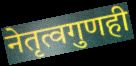
नेतृत्वगुणही